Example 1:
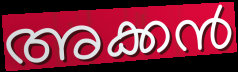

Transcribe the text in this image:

അക്കൻ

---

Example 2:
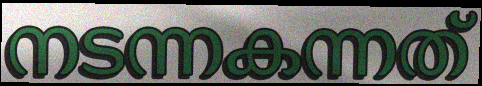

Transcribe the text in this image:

നടന്നകന്നത്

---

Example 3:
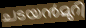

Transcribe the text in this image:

ചടയൻമുറി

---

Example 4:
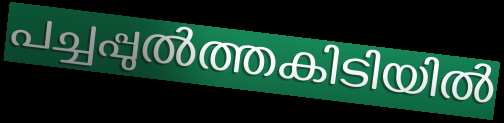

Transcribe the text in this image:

പച്ചപ്പുൽത്തകിടിയിൽ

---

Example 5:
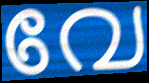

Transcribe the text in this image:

വേ